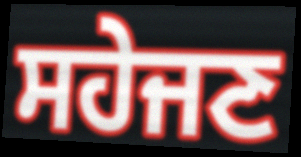
ਸਹੇਜਣ